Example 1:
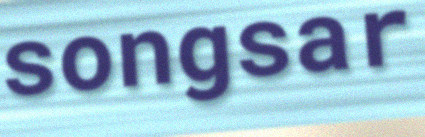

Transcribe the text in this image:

songsar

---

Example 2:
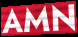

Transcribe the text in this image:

AMN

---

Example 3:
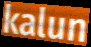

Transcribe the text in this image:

kalun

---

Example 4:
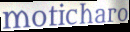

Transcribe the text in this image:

moticharo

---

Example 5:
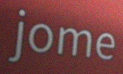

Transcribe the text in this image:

jome